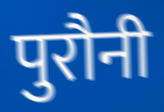
पुरौनी